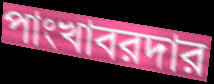
পাংখাবরদার